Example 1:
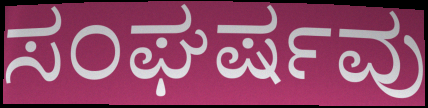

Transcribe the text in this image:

ಸಂಘರ್ಷವು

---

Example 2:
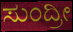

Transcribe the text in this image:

ಸುಂದ್ರೀ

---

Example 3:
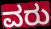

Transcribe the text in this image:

ವರು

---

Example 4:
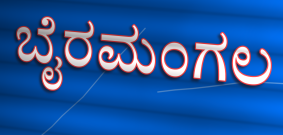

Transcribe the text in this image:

ಬೈರಮಂಗಲ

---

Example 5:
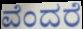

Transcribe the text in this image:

ವೆಂದರೆ